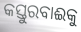
କସ୍ତୁରବାଈକୁ